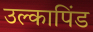
उल्‍कापिंड